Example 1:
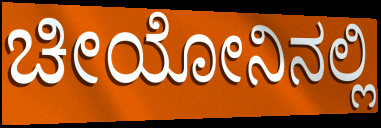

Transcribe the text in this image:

ಚೀಯೋನಿನಲ್ಲಿ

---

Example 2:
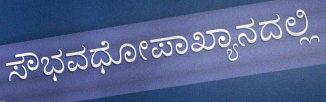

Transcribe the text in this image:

ಸೌಭವಧೋಪಾಖ್ಯಾನದಲ್ಲಿ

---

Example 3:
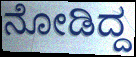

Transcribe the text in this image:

ನೋಡಿದ್ದ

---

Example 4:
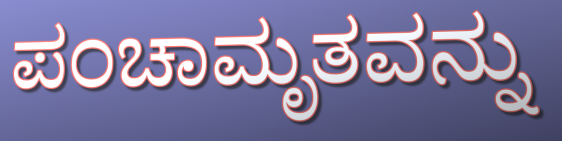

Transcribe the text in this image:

ಪಂಚಾಮೃತವನ್ನು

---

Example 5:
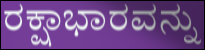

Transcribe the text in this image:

ರಕ್ಷಾಭಾರವನ್ನು